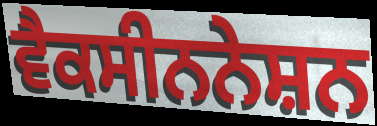
ਵੈਕਸੀਨਨੇਸ਼ਨ